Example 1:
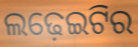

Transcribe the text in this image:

ଲଢ଼େଇଟିର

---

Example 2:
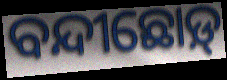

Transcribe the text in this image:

ବନ୍ଦୀଛୋଡ଼୍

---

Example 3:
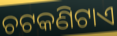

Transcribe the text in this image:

ଚଟକଣିଟାଏ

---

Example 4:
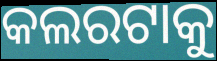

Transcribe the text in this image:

କଲରଟାକୁ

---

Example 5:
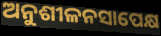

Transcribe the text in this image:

ଅନୁଶୀଳନସାପେକ୍ଷ